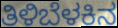
ತಿಳಿಬೆಳಕಿನ